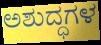
ಅಶುದ್ಧಗಳ